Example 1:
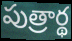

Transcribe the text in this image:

పుత్రార్థ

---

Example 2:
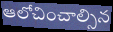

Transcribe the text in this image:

ఆలోచించాల్సిన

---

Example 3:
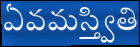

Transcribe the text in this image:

ఏవమస్త్వితి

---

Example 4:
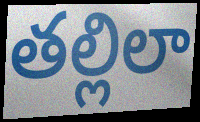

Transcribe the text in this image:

తల్లిలా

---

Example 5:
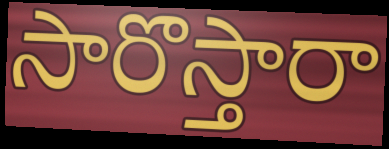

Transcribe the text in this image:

సారొస్తారా